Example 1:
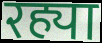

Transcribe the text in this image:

रह्या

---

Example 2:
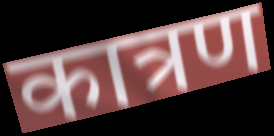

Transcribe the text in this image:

कात्रण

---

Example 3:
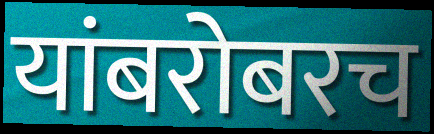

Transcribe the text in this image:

यांबरोबरच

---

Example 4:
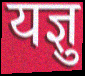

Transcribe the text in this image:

यज्ञु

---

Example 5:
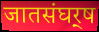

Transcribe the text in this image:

जातसंघर्ष